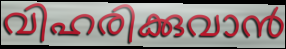
വിഹരിക്കുവാൻ